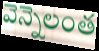
వెన్నెలంత